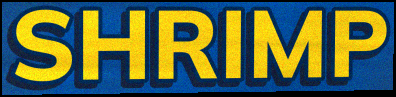
SHRIMP